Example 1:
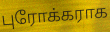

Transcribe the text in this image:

புரோக்கராக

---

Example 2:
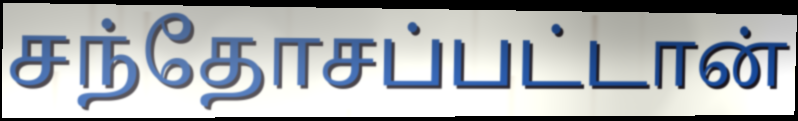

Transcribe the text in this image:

சந்தோசப்பட்டான்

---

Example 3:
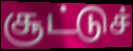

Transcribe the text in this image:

சூட்டுச்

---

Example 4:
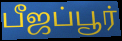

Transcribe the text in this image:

பீஜப்பூர்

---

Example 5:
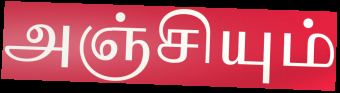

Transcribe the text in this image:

அஞ்சியும்